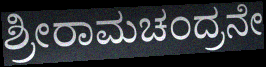
ಶ್ರೀರಾಮಚಂದ್ರನೇ